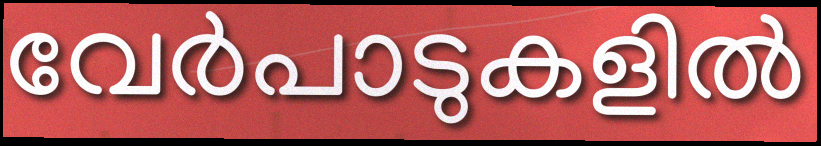
വേർപാടുകളിൽ